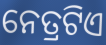
ନେତ୍ରଟିଏ